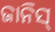
ଜାନିସ୍